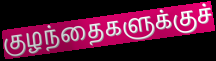
குழந்தைகளுக்குச்